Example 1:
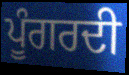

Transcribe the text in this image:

ਪੂੰਗਰਦੀ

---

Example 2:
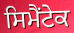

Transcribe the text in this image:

ਸਿਮੈਂਟੇਕ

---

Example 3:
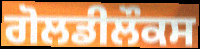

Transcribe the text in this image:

ਗੋਲਡੀਲੌਕਸ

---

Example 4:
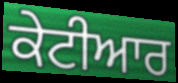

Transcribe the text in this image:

ਕੇਟੀਆਰ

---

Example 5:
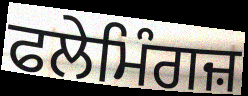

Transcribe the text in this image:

ਫਲੇਮਿੰਗਜ਼